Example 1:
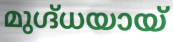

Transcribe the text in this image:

മുഗ്ദ്ധയായ്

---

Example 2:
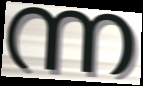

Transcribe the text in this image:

ന്ന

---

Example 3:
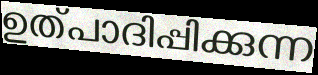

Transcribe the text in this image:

ഉത്പാദിപ്പിക്കുന്ന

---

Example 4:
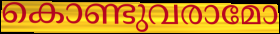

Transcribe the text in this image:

കൊണ്ടുവരാമോ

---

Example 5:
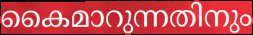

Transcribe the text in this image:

കൈമാറുന്നതിനും